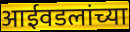
आईवडलांच्या